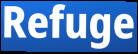
Refuge